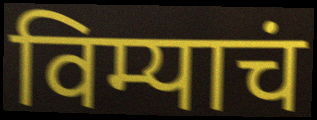
विम्याचं